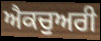
ਐਕਚੁਅਰੀ